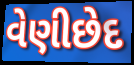
વેણીછેદ